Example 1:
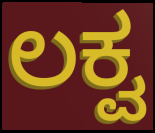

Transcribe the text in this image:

ಲಕ್ವ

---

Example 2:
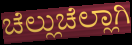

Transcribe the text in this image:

ಚೆಲ್ಲುಚೆಲ್ಲಾಗಿ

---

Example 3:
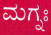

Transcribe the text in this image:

ಮಗ್ನಃ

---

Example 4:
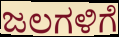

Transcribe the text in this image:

ಜಲಗಳಿಗೆ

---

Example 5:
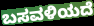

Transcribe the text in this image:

ಬಸವಳಿಯದೆ